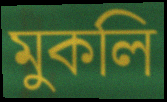
মুকলি